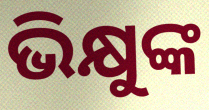
ଭିକ୍ଷୁଙ୍କ